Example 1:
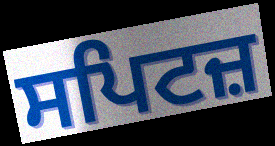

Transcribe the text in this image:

ਸਪਿਟਜ਼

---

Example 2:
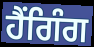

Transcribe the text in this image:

ਹੈਂਗਿੰਗ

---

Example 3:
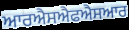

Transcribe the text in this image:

ਆਰਐਸਐਫਐਸਆਰ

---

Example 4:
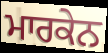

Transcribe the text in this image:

ਮਾਰਕੇਨ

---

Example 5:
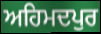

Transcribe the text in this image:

ਅਹਿਮਦਪੁਰ